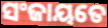
ସଂଜାୟତେ